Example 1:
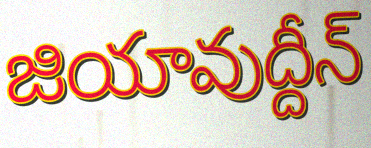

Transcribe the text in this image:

జియావుద్దీన్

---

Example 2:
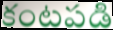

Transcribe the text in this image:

కంటపడి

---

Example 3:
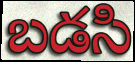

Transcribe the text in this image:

బడసి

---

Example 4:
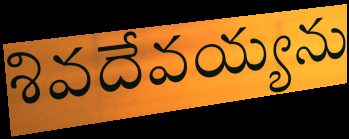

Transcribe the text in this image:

శివదేవయ్యను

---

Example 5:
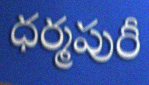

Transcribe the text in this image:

ధర్మపురీ